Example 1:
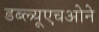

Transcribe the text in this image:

डब्ल्यूएचओने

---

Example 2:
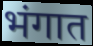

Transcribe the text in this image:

भंगात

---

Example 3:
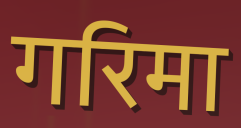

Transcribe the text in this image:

गरिमा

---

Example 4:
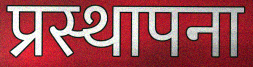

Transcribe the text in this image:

प्रस्थापना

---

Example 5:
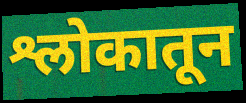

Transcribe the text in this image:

श्लोकातून